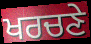
ਖਰਚਣੇ